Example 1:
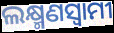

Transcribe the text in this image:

ଲକ୍ଷ୍ମଣସ୍ଵାମୀ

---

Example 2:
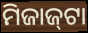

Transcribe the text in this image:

ମିଜାଜ୍‌ଟା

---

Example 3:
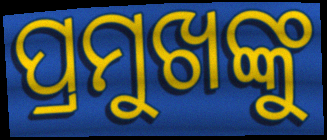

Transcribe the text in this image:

ପ୍ରମୁଖଙ୍କୁ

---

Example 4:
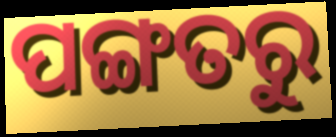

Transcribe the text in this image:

ପଙ୍ଗତରୁ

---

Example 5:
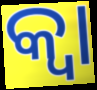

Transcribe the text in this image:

କ୍ଵା